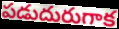
పడుదురుగాక